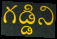
గడ్డిని